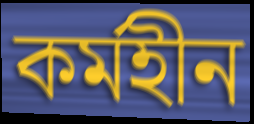
কৰ্মহীন